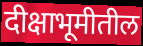
दीक्षाभूमीतील